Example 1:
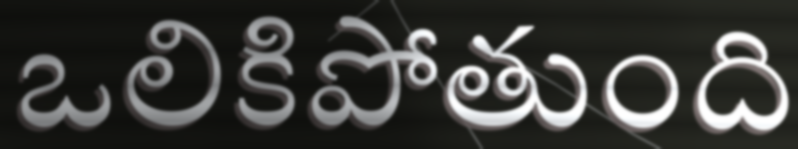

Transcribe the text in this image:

ఒలికిపోతుంది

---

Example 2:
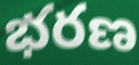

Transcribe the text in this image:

భరణ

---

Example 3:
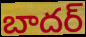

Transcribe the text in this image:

బాదర్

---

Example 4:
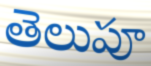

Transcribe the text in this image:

తెలుపూ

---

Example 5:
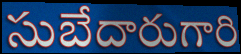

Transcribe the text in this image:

సుబేదారుగారి